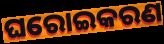
ଘରୋଇକରଣ